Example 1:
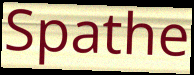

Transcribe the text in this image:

Spathe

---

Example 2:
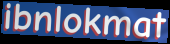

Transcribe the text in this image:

ibnlokmat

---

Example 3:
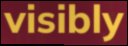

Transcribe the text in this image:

visibly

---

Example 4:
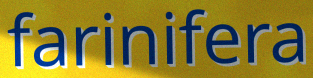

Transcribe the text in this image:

farinifera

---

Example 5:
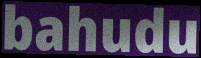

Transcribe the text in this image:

bahudu